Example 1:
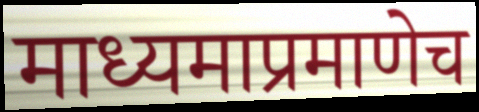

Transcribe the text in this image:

माध्यमाप्रमाणेच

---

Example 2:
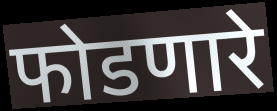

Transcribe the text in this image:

फोडणारे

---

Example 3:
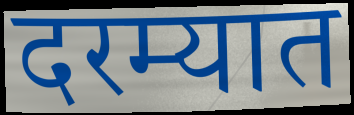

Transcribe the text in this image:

दरम्यात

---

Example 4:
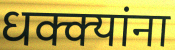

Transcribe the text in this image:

धक्क्यांना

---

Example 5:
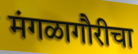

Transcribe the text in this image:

मंगळागौरीचा